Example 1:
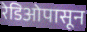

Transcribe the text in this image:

रेडिओपासून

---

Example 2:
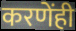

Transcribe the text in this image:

करणेंही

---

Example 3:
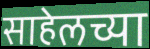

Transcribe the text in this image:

साहेलच्या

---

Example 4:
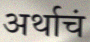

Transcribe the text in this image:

अर्थाचं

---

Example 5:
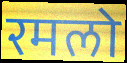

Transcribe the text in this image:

रमलो